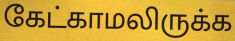
கேட்காமலிருக்க